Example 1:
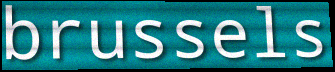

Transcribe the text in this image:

brussels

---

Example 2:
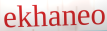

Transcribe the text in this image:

ekhaneo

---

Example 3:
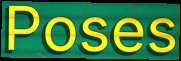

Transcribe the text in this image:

Poses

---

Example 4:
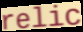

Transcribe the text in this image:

relic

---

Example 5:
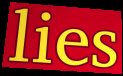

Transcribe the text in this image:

lies